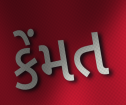
કેંમત